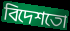
বিদেশতো